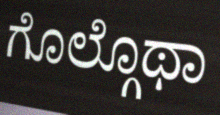
ಗೊಲ್ಗೊಥಾ